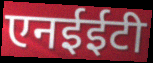
एनईईटी